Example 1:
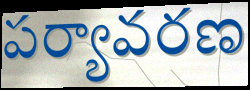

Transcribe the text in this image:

పర్యావరణ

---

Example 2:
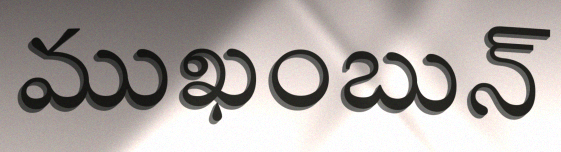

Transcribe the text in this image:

ముఖంబున్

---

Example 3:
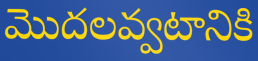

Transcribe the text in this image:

మొదలవ్వటానికి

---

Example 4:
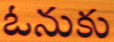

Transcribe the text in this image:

ఓనుకు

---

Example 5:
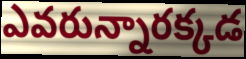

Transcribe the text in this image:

ఎవరున్నారక్కడ